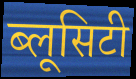
ब्लूसिटी